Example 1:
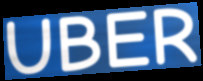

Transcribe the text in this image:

UBER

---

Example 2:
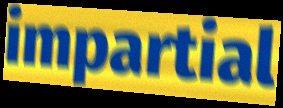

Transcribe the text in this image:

impartial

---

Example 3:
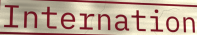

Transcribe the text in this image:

Internation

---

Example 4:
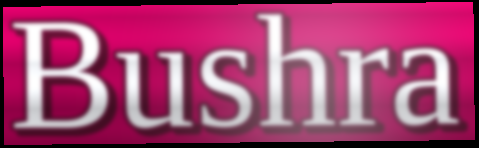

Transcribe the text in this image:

Bushra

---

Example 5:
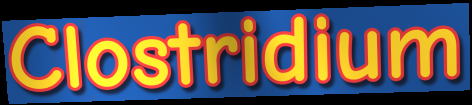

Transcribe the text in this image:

Clostridium